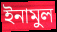
ইনামুল